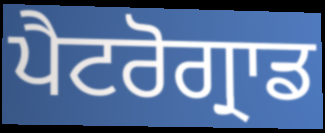
ਪੈਟਰੋਗ੍ਰਾਡ